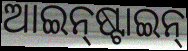
ଆଇନ୍‌ଷ୍ଟାଇନ୍